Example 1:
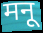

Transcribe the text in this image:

मनू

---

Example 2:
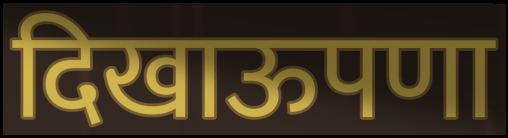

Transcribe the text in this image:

दिखाऊपणा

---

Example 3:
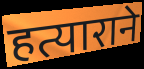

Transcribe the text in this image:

हत्याराने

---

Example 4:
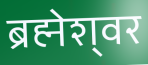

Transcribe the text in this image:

ब्रह्मेश्वर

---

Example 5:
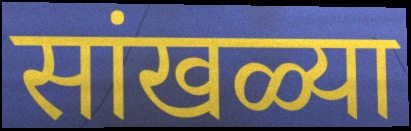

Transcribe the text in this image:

सांखळ्या